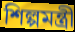
শিল্পমন্ত্রী